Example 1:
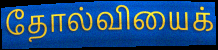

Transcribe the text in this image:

தோல்வியைக்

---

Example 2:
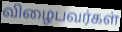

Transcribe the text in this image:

விழைபவர்கள்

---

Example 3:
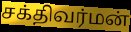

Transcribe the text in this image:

சக்திவர்மன்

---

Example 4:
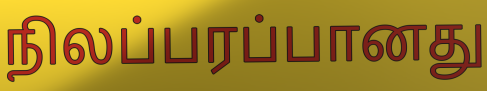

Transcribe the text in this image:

நிலப்பரப்பானது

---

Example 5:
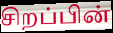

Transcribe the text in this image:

சிறப்பின்